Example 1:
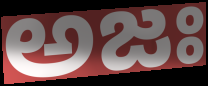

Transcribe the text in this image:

అజః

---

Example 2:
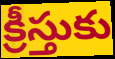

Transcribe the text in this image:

క్రీస్తుకు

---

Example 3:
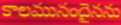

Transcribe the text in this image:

కాలమునందైనను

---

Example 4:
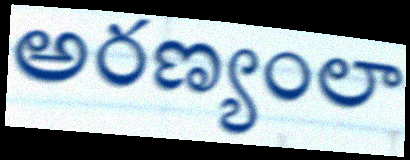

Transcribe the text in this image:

అరణ్యంలా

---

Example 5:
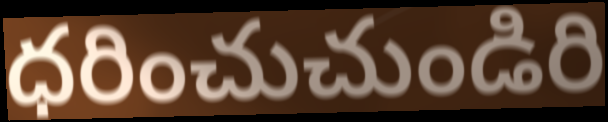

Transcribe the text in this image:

ధరించుచుండిరి